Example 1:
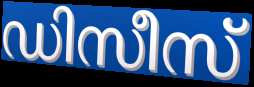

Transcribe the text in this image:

ഡിസീസ്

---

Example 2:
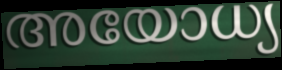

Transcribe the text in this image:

അയോധ്യ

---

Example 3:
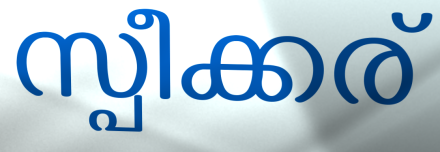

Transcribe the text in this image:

സ്പീക്കര്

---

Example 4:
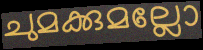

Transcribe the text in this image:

ചുമക്കുമല്ലോ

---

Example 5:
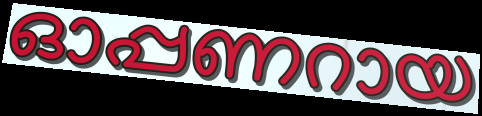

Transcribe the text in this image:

ഓപ്പണറായ